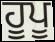
ਹੂਪੂ